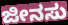
ಜೀನಸು